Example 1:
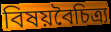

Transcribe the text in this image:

বিষয়বৈচিত্র্য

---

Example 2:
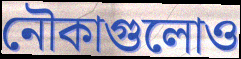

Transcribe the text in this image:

নৌকাগুলোও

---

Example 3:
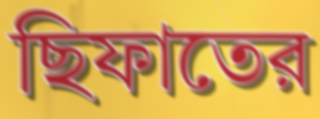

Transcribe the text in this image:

ছিফাতের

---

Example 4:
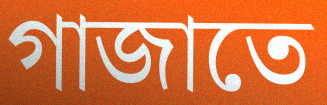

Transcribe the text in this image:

গাজাতে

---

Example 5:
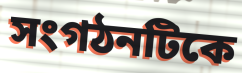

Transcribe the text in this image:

সংগঠনটিকে